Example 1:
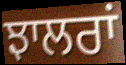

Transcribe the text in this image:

ਝਾਲਰਾਂ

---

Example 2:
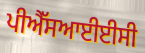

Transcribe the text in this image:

ਪੀਐੱਸਆਈਈਸੀ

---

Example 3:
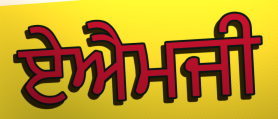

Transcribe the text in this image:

ਏਐਮਜੀ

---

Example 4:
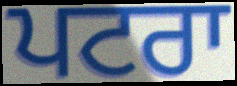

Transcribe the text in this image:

ਪਟਰਾ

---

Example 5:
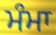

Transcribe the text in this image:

ਮੰਮਾ